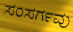
ಸಂಸರ್ಗವು